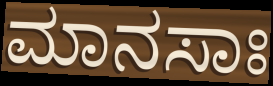
ಮಾನಸಾಃ